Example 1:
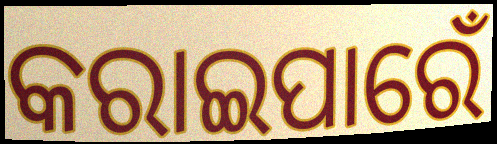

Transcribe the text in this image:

କରାଇପାରେଁ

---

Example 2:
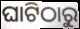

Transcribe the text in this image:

ଘାଟିଠାରୁ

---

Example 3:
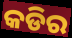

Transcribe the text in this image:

କଡିର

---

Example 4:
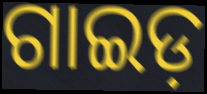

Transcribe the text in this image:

ଗାଇଡ଼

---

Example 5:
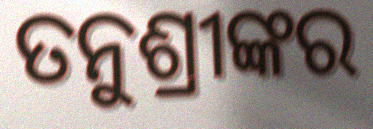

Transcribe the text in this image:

ତନୁଶ୍ରୀଙ୍କର